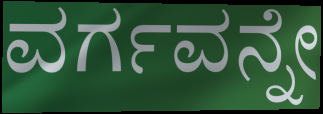
ವರ್ಗವನ್ನೇ